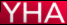
YHA